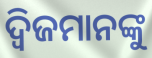
ଦ୍ଵିଜମାନଙ୍କୁ